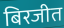
बिरजीत